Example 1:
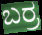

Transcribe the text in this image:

ಬರ್ರ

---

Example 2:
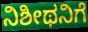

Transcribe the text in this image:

ನಿಶೀಥನಿಗೆ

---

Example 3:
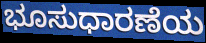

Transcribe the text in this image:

ಭೂಸುಧಾರಣೆಯ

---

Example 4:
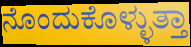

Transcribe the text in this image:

ನೊಂದುಕೊಳ್ಳುತ್ತಾ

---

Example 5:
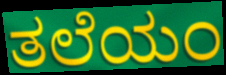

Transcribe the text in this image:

ತಲೆಯಂ